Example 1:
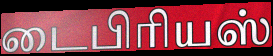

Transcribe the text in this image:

டைபிரியஸ்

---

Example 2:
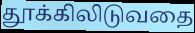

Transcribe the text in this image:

தூக்கிலிடுவதை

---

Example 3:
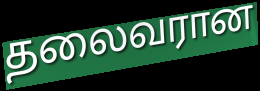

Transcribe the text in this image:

தலைவரான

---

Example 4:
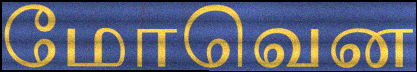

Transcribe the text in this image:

மோவென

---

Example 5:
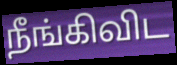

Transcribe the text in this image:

நீங்கிவிட